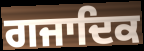
ਗਜਾਦਿਕ